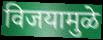
विजयामुळे